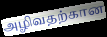
அழிவதற்கான